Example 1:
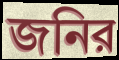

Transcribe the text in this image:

জনির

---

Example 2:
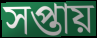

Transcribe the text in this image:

সপ্তায়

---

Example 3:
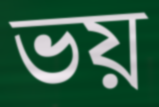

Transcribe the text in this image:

ভয়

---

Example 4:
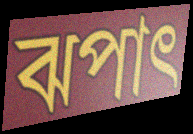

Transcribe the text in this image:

ঝপাৎ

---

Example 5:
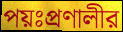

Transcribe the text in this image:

পয়ঃপ্রণালীর